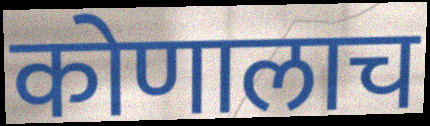
कोणालाच